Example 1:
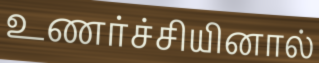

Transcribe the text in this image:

உணர்ச்சியினால்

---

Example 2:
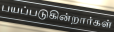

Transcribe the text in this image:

பயப்படுகின்றார்கள்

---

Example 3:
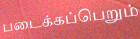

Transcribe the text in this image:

படைக்கப்பெறும்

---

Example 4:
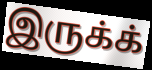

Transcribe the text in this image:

இருக்க்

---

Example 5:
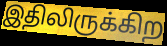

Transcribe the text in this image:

இதிலிருக்கிற